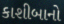
કાશીબાનો